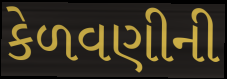
કેળવણીની